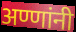
अण्णांनी